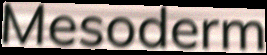
Mesoderm